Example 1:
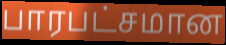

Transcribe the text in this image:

பாரபட்சமான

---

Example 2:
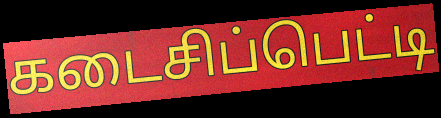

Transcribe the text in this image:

கடைசிப்பெட்டி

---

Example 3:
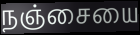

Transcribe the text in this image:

நஞ்சையை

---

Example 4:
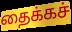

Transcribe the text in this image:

தைக்கச்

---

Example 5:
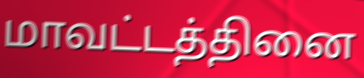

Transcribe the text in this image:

மாவட்டத்தினை